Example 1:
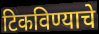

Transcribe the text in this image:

टिकविण्याचे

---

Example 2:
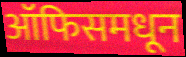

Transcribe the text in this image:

ऑफिसमधून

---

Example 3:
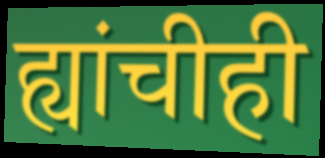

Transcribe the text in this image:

ह्यांचीही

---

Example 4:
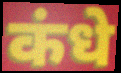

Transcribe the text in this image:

कंधे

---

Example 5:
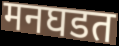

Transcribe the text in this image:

मनघडत